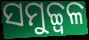
ସମୁଚ୍ଚ୍ୱଳ